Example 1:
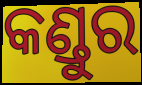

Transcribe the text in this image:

କଣ୍ଡୁର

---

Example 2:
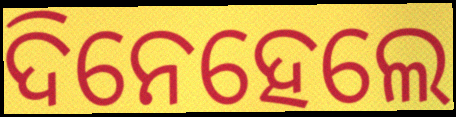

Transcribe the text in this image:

ଦିନେହେଲେ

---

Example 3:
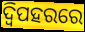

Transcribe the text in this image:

ଦ୍ୱିପହରରେ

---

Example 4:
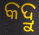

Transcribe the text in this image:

କଦ୍ରୁ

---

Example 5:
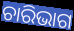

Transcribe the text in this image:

ଚାରିଭାଗ